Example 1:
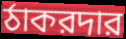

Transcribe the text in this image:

ঠাকরদার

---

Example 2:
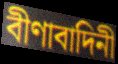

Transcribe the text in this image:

বীণাবাদিনী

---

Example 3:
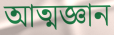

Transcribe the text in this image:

আত্মজ্ঞান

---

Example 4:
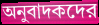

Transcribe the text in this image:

অনুবাদকদের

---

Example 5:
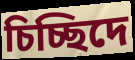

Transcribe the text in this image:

চিচ্ছিদে